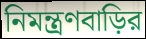
নিমন্ত্রণবাড়ির